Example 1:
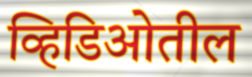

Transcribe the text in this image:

व्हिडिओतील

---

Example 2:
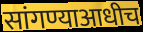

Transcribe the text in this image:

सांगण्याआधीच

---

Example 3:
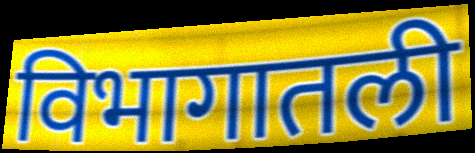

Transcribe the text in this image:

विभागातली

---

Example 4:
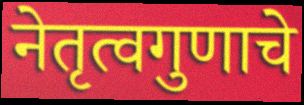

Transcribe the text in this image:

नेतृत्वगुणाचे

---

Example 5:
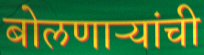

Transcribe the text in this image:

बोलणाऱ्यांची